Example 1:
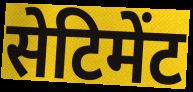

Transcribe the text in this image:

सेटिमेंट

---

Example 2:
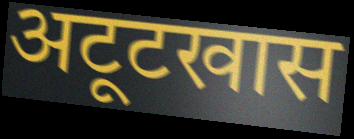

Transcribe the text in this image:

अटूटखास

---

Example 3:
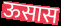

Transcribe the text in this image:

ऊसास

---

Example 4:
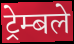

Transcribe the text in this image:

ट्रेम्बले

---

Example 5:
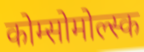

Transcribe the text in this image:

कोम्सोमोल्स्क